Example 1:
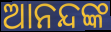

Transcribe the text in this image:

ଆନନ୍ଦଙ୍କ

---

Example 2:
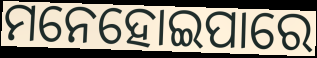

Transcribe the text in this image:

ମନେହୋଇପାରେ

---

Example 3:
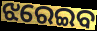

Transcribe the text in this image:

ଝରେଇବ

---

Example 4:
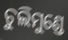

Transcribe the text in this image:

ଚୁଲିମୁଣ୍ଡେ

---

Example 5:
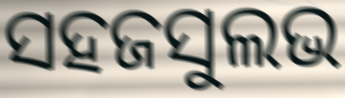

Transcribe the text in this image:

ସହଜସୁଲଭ